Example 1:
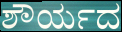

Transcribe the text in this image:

ಶೌರ್ಯದ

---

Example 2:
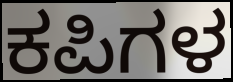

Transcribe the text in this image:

ಕಪಿಗಳ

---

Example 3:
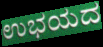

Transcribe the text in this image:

ಉಭಯದ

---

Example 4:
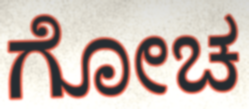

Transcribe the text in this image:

ಗೋಚ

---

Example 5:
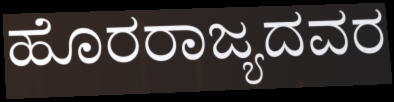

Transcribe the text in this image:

ಹೊರರಾಜ್ಯದವರ